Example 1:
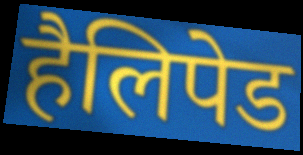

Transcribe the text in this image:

हैलिपेड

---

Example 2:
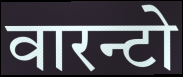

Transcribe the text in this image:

वारन्टो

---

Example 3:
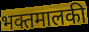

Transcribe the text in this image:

भक्तमालकी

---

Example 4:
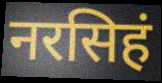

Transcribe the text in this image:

नरसिहं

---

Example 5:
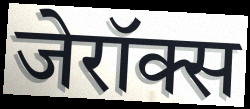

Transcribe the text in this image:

जेरॉक्स